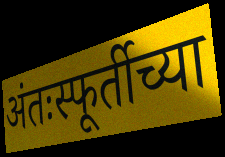
अंतःस्फूर्तीच्या